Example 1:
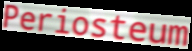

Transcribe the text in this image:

Periosteum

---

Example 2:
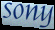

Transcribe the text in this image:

sony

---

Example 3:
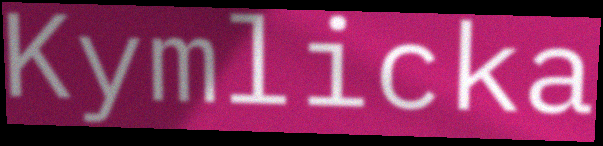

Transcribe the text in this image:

Kymlicka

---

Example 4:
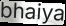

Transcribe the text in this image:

bhaiya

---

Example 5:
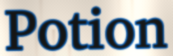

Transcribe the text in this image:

Potion